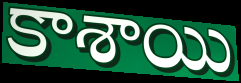
కాశాయి